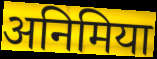
अनिमिया